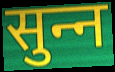
सुन्न